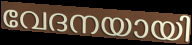
വേദനയായി